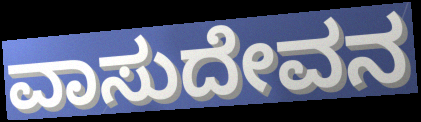
ವಾಸುದೇವನ